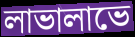
লাভালাভে